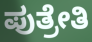
ಪುತ್ರೇತಿ